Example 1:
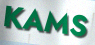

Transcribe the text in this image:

KAMS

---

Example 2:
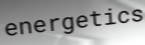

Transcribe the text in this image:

energetics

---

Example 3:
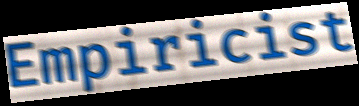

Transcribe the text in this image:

Empiricist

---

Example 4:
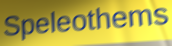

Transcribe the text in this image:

Speleothems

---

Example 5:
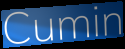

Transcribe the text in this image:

Cumin